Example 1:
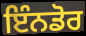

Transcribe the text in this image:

ਇੰਨਡੋਰ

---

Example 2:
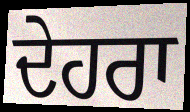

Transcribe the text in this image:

ਦੇਹਰਾ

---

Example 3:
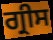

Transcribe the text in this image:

ਗ੍ਰੀਸ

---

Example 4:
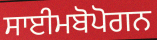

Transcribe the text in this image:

ਸਾਈਮਬੋਪੋਗਨ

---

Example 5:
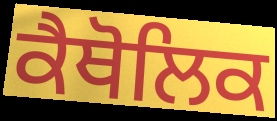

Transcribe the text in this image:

ਕੈਥੋਲਿਕ